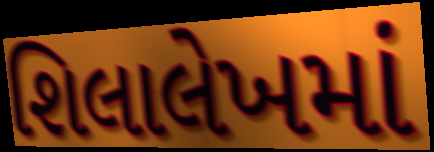
શિલાલેખમાં